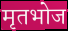
मृतभोज